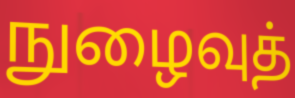
நுழைவுத்